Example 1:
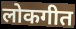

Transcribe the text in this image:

लोकगीत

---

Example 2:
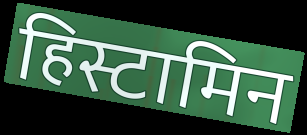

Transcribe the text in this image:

हिस्टामिन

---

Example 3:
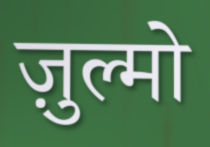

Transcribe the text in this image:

ज़ुल्मो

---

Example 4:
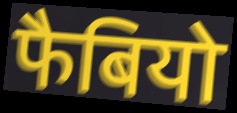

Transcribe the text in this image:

फैबियो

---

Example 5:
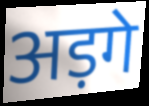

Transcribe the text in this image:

अड़गे